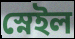
স্নেইল